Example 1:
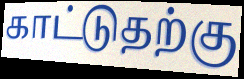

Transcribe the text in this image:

காட்டுதற்கு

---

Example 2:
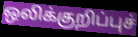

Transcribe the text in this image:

ஒலிக்குறிப்புச்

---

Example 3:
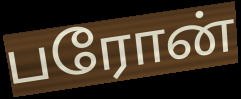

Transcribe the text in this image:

பரோன்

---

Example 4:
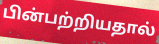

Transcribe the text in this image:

பின்பற்றியதால்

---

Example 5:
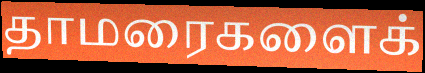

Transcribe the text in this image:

தாமரைகளைக்